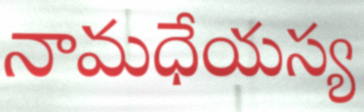
నామధేయస్య